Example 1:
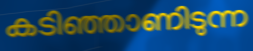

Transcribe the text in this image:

കടിഞ്ഞാണിടുന്ന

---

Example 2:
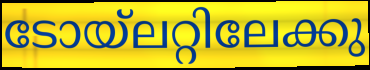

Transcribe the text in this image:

ടോയ്ലറ്റിലേക്കു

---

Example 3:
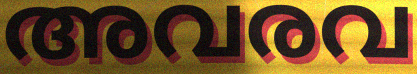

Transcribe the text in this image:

അവരവ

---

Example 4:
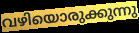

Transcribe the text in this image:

വഴിയൊരുക്കുന്നു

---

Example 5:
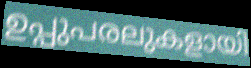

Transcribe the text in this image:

ഉപ്പുപരലുകളായി